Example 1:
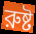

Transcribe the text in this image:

রুষ্ট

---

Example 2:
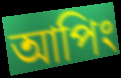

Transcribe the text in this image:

আপিং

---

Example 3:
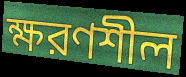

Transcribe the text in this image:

ক্ষরণশীল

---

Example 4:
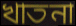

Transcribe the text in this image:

খাতনা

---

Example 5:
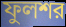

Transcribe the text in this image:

ফুলশর